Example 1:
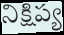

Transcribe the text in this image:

నిక్షిప్య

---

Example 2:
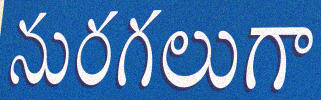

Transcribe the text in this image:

నురగలుగా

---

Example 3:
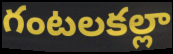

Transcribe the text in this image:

గంటలకల్లా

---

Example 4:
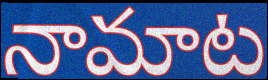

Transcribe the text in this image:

నామాట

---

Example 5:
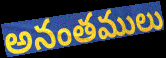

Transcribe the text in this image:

అనంతములు